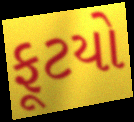
ફૂટયો